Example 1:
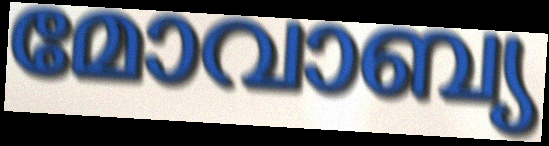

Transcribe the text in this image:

മോവാബ്യ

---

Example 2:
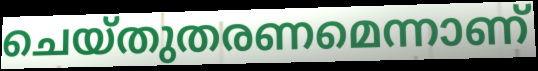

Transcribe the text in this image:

ചെയ്തുതരണമെന്നാണ്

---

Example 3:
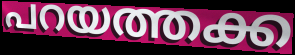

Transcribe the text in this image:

പറയത്തക്ക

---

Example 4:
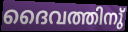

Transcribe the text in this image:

ദൈവത്തിനു്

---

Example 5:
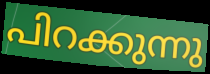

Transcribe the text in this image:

പിറക്കുന്നു